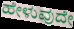
ಹೇಳುವುದೇ